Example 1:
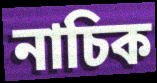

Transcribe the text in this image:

নাচিক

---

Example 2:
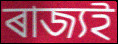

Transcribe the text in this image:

ৰাজ্যই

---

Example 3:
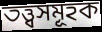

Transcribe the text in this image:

তত্ত্বসমূহক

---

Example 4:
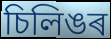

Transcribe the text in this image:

চিলিঙৰ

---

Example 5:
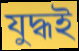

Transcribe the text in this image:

যুদ্ধই